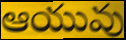
ఆయువు